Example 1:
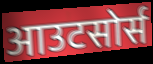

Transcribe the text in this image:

आउटसोर्स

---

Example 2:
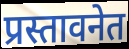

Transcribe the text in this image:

प्रस्तावनेत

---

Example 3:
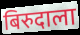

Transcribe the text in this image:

बिरुदाला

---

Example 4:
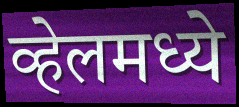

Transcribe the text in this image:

व्हेलमध्ये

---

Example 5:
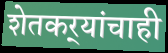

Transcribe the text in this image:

शेतकर्यांचाही